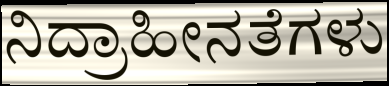
ನಿದ್ರಾಹೀನತೆಗಳು